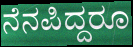
ನೆನಪಿದ್ದರೂ